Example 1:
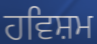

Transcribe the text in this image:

ਹਵਿਸ਼ਮ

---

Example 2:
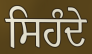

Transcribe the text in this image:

ਸਿਹੰਦੇ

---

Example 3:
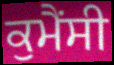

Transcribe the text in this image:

ਕੁਮੈਂਸੀ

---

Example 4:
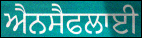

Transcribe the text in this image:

ਐਨਸੈਫਲਾਈ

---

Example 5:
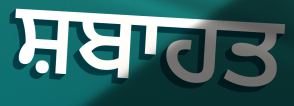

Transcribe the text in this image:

ਸ਼ਬਾਹਤ